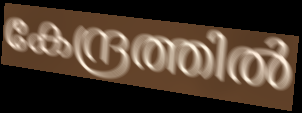
കേന്ദ്രത്തിൽ